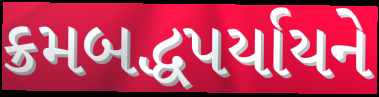
ક્રમબદ્ધપર્યાયને